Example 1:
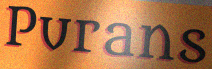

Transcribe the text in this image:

Purans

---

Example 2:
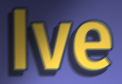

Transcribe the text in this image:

Ive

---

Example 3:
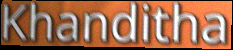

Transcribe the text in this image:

Khanditha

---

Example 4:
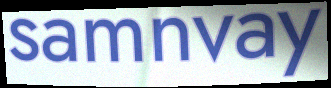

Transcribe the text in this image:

samnvay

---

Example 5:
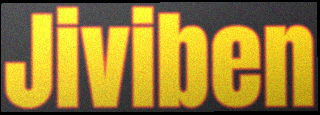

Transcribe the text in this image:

Jiviben